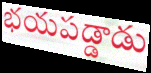
భయపడ్డాడు